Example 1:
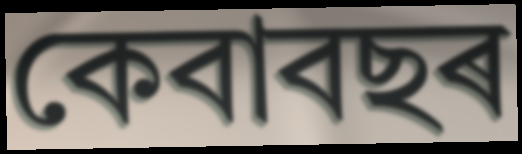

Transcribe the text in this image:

কেবাবছৰ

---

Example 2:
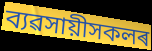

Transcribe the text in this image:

ব্যৱসায়ীসকলৰ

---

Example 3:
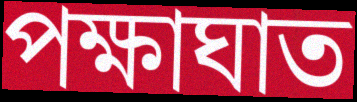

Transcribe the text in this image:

পক্ষাঘাত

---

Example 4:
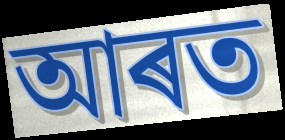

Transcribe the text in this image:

আৰত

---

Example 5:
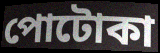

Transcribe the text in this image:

পোটোকা